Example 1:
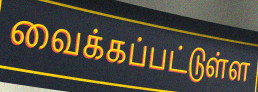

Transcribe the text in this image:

வைக்கப்பட்டுள்ள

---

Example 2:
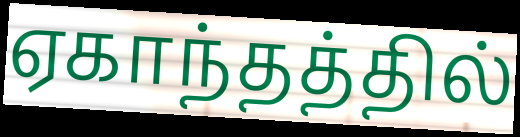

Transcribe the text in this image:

ஏகாந்தத்தில்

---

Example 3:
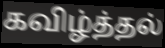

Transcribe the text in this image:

கவிழ்த்தல்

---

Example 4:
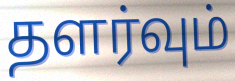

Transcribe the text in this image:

தளர்வும்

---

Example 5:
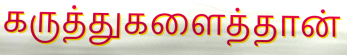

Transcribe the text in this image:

கருத்துகளைத்தான்